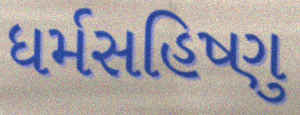
ધર્મસહિષ્ણુ